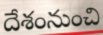
దేశంనుంచి